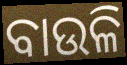
ବାଉଳି